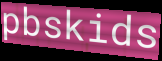
pbskids